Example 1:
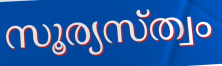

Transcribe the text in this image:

സൂര്യസ്ത്വം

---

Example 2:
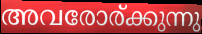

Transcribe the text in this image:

അവരോര്ക്കുന്നു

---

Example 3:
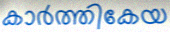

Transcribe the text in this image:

കാർത്തികേയ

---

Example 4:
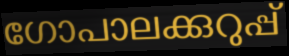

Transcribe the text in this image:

ഗോപാലക്കുറുപ്പ്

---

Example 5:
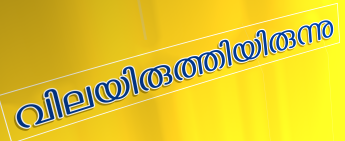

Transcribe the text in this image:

വിലയിരുത്തിയിരുന്നു